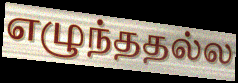
எழுந்ததல்ல